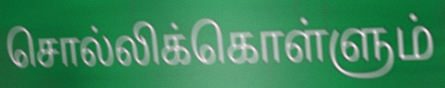
சொல்லிக்கொள்ளும்